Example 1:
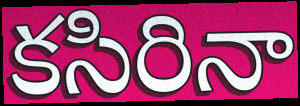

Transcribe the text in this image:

కసిరినా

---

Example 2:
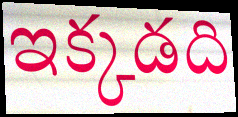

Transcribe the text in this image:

ఇక్కడది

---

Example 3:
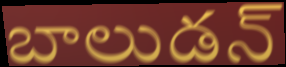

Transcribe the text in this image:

బాలుడన్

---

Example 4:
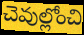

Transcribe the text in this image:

చెవుల్లోంచి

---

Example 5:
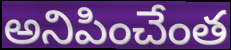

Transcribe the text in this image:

అనిపించేంత